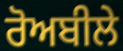
ਰੋਅਬੀਲੇ